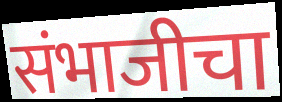
संभाजीचा